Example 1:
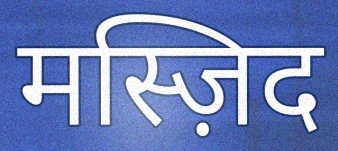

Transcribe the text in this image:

मस्ज़िद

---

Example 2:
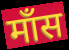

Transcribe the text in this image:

माँस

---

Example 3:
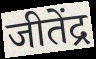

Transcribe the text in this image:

जीतेंद्र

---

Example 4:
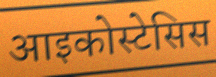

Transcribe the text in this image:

आइकोस्टेसिस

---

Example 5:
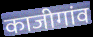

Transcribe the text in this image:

काजीगांव